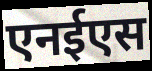
एनईएस